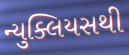
ન્યુક્લિયસથી